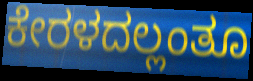
ಕೇರಳದಲ್ಲಂತೂ